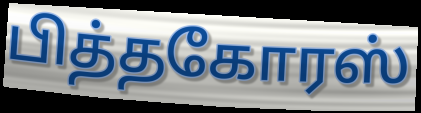
பித்தகோரஸ்